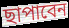
ছাপাবেন